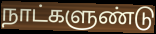
நாட்களுண்டு